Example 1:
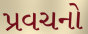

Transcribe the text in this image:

પ્રવચનો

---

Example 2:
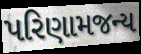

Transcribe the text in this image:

પરિણામજન્ય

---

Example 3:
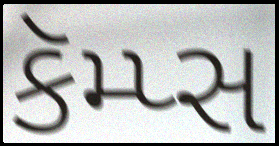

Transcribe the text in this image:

કૅમ્પ્સ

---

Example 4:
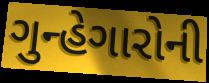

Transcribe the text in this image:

ગુન્હેગારોની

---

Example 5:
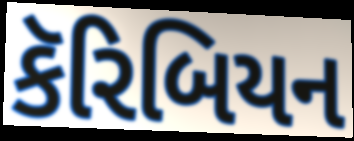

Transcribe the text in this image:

કૅરિબિયન